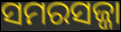
ସମରସଜ୍ଜା